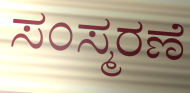
ಸಂಸ್ಮರಣೆ